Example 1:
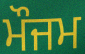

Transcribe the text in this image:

ਮੌਜਮ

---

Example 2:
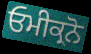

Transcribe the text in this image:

ਓਮੀਕ੍ਰਨੋ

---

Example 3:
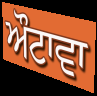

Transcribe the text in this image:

ਔਟਾਵਾ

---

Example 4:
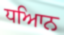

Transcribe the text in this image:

ਧਆਿਨ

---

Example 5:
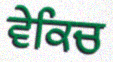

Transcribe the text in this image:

ਵੇਕਿਚ